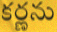
కర్ణను